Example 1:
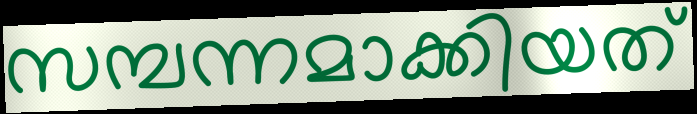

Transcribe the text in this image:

സമ്പന്നമാക്കിയത്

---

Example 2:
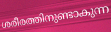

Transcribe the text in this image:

ശരീരത്തിനുണ്ടാകുന്ന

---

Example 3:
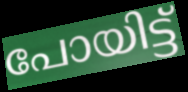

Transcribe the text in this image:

പോയിട്ട്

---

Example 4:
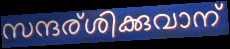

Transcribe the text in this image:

സന്ദര്ശിക്കുവാന്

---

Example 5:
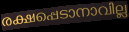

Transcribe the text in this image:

രക്ഷപ്പെടാനാവില്ല